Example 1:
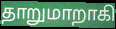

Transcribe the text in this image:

தாறுமாறாகி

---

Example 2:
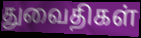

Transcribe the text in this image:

துவைதிகள்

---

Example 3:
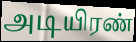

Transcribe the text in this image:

அடியிரண்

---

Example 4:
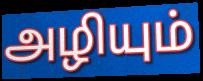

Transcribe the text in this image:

அழியும்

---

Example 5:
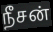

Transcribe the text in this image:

நீசன்